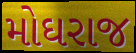
મોઘરાજ